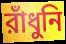
রাঁধুনি